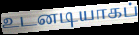
உடனடியாகப்